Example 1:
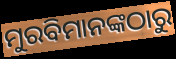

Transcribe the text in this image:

ମୁରବିମାନଙ୍କଠାରୁ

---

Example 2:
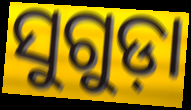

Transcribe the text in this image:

ସୁଗୁଡ଼ା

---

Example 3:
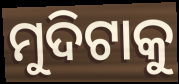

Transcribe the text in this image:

ମୁଦିଟାକୁ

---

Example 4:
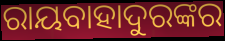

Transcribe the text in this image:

ରାୟବାହାଦୁରଙ୍କର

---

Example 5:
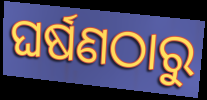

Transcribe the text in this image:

ଘର୍ଷଣଠାରୁ